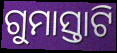
ଗୁମାସ୍ତାଟି